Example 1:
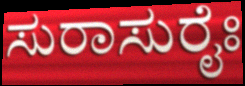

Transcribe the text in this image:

ಸುರಾಸುರೈಃ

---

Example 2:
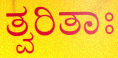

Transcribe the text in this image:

ತ್ವರಿತಾಃ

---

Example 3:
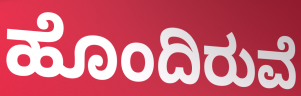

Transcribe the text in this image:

ಹೊಂದಿರುವೆ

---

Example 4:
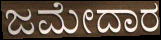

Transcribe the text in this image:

ಜಮೇದಾರ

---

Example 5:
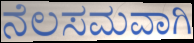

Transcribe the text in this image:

ನೆಲಸಮವಾಗಿ